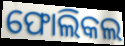
ଫୋଲିକଲ